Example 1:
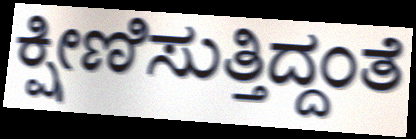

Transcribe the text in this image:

ಕ್ಷೀಣಿಸುತ್ತಿದ್ದಂತೆ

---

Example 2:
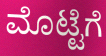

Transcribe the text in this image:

ಮೊಟ್ಟೆಗೆ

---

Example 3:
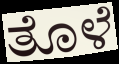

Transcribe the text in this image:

ತೊಳೆ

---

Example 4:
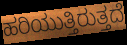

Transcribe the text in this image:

ಹರಿಯುತ್ತಿರುತ್ತದೆ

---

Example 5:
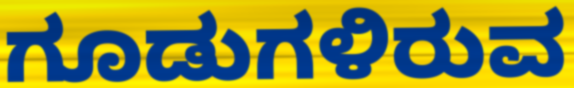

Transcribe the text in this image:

ಗೂಡುಗಳಿರುವ